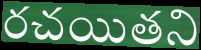
రచయితని